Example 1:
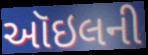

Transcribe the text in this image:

ઑઇલની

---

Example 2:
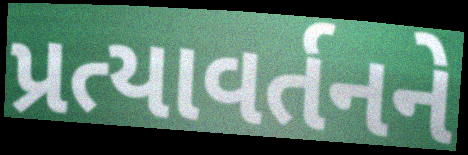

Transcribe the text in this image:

પ્રત્યાવર્તનને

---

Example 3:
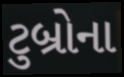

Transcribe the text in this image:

ટુબ્રોના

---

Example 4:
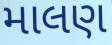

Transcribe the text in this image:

માલણ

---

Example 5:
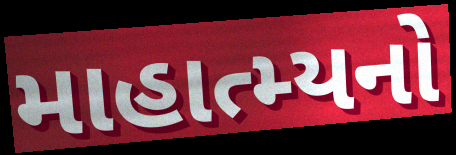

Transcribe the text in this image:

માહાત્મ્યનો